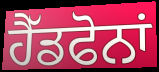
ਹੈੱਡਫੋਨਾਂ